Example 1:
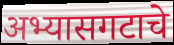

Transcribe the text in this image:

अभ्यासगटाचे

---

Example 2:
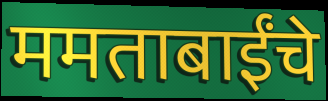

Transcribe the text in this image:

ममताबाईंचे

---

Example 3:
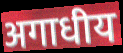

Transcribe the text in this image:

अगाधीय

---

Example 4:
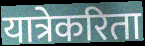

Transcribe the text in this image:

यात्रेकरिता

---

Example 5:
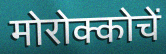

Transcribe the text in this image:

मोरोक्कोचें